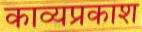
काव्यप्रकाश